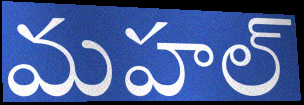
మహల్